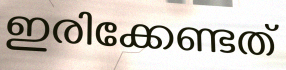
ഇരിക്കേണ്ടത്